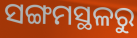
ସଙ୍ଗମସ୍ଥଳରୁ